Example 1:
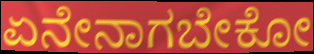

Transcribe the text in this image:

ಏನೇನಾಗಬೇಕೋ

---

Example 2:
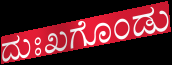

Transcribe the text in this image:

ದುಃಖಗೊಂಡು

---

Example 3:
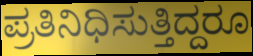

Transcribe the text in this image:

ಪ್ರತಿನಿಧಿಸುತ್ತಿದ್ದರೂ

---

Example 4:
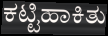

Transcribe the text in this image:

ಕಟ್ಟಿಹಾಕಿತು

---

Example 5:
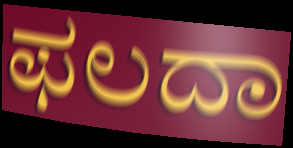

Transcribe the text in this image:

ಫಲದಾ